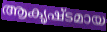
ആകൃഷ്ടമായ